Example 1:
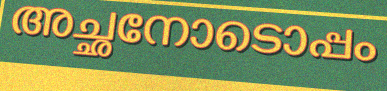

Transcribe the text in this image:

അച്ഛനോടൊപ്പം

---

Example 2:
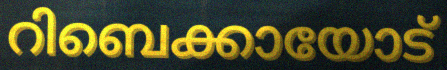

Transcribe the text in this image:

റിബെക്കായോട്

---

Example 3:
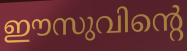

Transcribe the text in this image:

ഈസുവിന്റെ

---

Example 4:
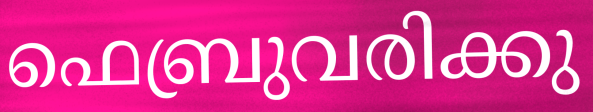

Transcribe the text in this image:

ഫെബ്രുവരിക്കു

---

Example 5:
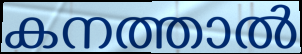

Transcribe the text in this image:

കനത്താൽ